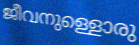
ജീവനുള്ളൊരു